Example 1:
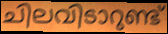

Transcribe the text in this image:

ചിലവിടാറുണ്ട്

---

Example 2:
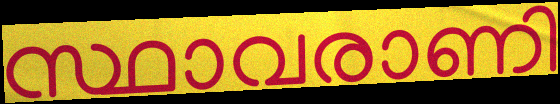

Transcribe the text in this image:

സ്ഥാവരാണി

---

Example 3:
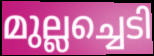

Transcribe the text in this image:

മുല്ലച്ചെടി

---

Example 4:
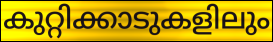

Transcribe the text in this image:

കുറ്റിക്കാടുകളിലും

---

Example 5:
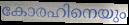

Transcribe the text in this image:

കോരഹിനെയും